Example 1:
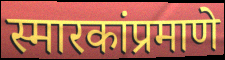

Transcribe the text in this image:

स्मारकांप्रमाणे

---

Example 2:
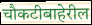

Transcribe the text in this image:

चौकटीबाहेरील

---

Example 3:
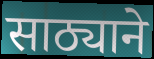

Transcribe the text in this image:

साठ्याने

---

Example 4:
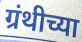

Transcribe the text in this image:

ग्रंथीच्या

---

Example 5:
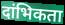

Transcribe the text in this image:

दांभिकता